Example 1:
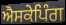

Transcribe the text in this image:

ਐਸਕੇਪਿੰਗ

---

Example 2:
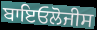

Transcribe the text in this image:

ਬਾਇਓਲੋਜੀਸ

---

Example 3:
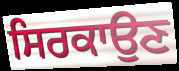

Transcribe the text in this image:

ਸਿਰਕਾਉਣ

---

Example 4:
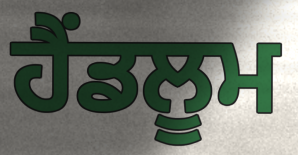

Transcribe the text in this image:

ਹੈਂਡਲੂਮ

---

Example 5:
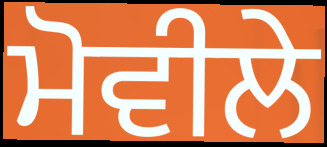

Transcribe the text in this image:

ਮੋਵੀਲੇ